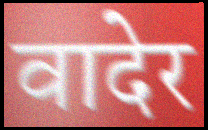
वादेर